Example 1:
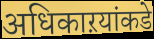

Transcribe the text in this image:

अधिकाऱयांकडे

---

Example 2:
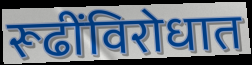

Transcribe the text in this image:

रूढींविरोधात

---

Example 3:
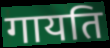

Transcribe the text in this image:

गायति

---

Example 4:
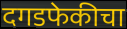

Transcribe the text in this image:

दगडफेकीचा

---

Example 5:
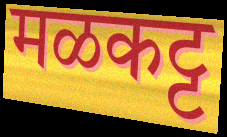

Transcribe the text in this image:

मळकट्ट